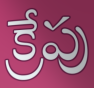
క్రేపు